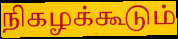
நிகழக்கூடும்